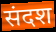
संदश